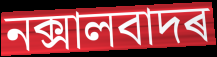
নক্সালবাদৰ